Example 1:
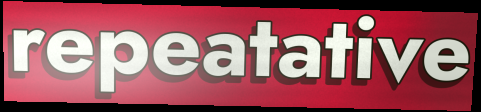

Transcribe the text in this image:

repeatative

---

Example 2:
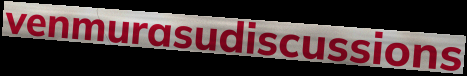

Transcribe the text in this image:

venmurasudiscussions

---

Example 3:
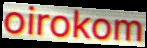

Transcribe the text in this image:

oirokom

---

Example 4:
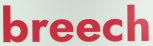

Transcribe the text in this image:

breech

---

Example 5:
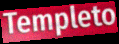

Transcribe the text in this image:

Templeto